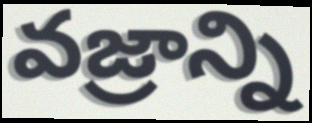
వజ్రాన్ని